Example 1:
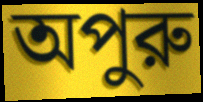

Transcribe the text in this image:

অপুরু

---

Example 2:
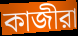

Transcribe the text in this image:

কাজীরা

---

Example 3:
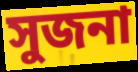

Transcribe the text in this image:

সুজনা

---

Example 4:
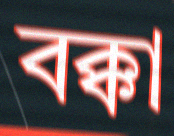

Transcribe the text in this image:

বক্কা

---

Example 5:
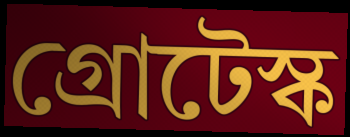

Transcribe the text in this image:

গ্রোটেস্ক